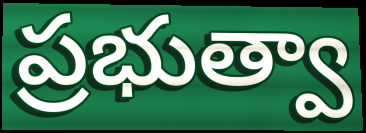
ప్రభుత్వా